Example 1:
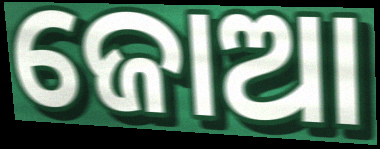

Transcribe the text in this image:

ଜୋଆ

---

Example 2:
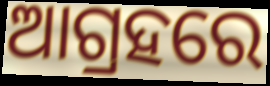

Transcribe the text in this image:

ଆଗ୍ରହରେ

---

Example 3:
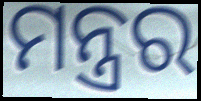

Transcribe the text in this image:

ମନ୍ତ୍ରର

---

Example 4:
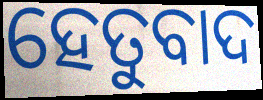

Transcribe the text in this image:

ହେତୁବାଦ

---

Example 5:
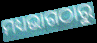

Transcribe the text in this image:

ମଧ୍ୟଭାଗଠାରୁ